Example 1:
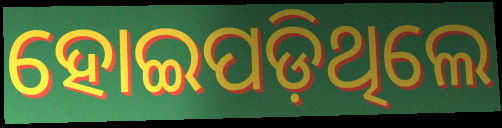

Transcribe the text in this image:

ହୋଇପଡ଼ିଥିଲେ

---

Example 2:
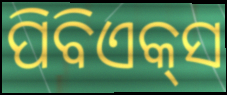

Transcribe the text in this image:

ପିବିଏକ୍‌ସ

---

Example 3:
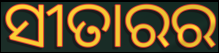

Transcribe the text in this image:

ସୀତାରର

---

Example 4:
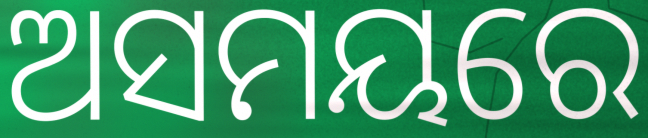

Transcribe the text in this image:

ଅସମୟରେ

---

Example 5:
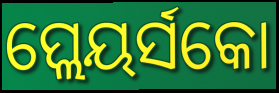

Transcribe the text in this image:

ପ୍ଲେୟର୍ସକୋ